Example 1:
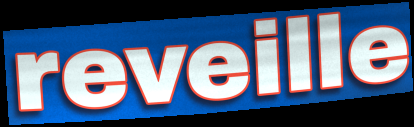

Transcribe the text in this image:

reveille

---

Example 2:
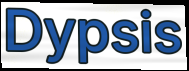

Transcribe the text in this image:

Dypsis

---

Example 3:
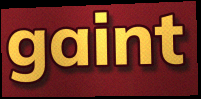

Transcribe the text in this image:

gaint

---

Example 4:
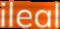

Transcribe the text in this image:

ileal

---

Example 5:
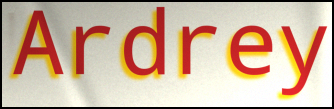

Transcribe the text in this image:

Ardrey